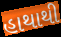
હાથાથી